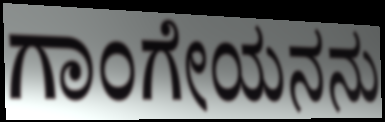
ಗಾಂಗೇಯನನು